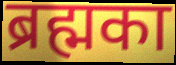
ब्रह्मका